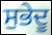
ਸੁਭੇਦੂ